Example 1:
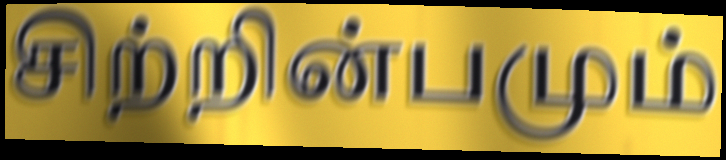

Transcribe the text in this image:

சிற்றின்பமும்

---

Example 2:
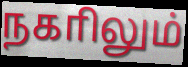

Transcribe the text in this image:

நகரிலும்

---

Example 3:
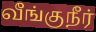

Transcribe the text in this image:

வீங்குநீர்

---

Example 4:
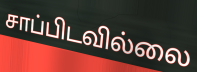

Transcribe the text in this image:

சாப்பிடவில்லை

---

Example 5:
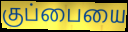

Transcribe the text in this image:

குப்பையை